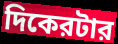
দিকেরটার